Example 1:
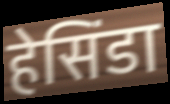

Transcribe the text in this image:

हेसिंडा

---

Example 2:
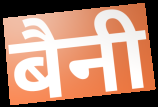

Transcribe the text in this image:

बैनी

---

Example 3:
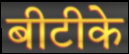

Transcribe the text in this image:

बीटीके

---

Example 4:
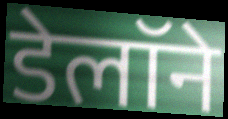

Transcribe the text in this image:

डेलॉने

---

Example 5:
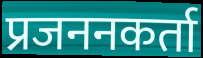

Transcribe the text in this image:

प्रजननकर्ता